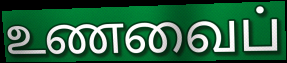
உணவைப்